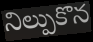
నిల్పుకొన